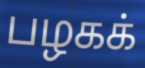
பழகக்